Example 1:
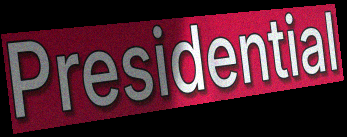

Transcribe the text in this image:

Presidential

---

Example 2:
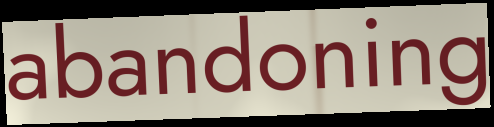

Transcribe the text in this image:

abandoning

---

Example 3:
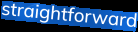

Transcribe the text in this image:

straightforward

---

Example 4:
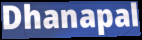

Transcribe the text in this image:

Dhanapal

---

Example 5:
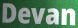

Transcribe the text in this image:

Devan